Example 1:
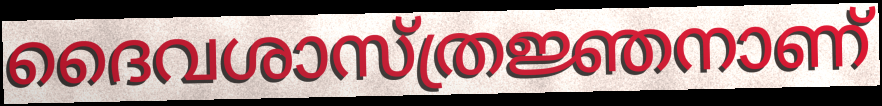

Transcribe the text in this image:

ദൈവശാസ്ത്രജ്ഞനാണ്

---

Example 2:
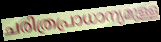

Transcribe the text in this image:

ചരിത്രപ്രാധാന്യമുള്ള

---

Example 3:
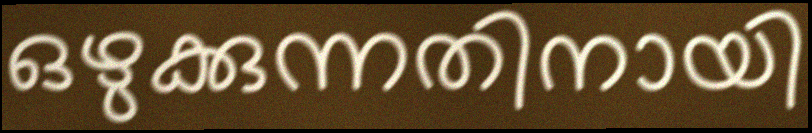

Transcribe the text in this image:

ഒഴുക്കുന്നതിനായി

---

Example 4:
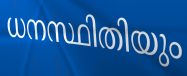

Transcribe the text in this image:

ധനസ്ഥിതിയും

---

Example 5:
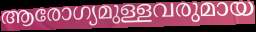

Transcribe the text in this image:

ആരോഗ്യമുള്ളവരുമായ